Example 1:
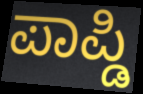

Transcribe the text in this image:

ಪಾಪ್ಡಿ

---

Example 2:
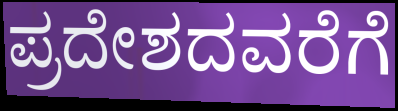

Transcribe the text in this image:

ಪ್ರದೇಶದವರೆಗೆ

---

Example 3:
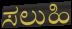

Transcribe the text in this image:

ಸಲುಹಿ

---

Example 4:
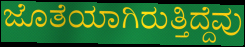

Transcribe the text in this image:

ಜೊತೆಯಾಗಿರುತ್ತಿದ್ದೆವು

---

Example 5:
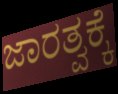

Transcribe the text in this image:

ಜಾರತ್ವಕ್ಕೆ